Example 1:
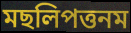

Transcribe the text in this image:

মছলিপত্তনম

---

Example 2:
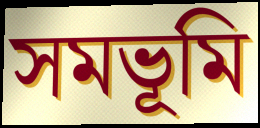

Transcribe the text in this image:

সমভূমি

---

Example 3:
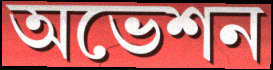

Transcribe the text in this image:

অভেশন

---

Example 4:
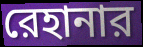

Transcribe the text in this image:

রেহানার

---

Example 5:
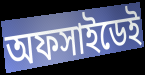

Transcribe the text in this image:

অফসাইডেই